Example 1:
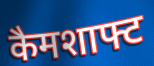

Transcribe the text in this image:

कैमशाफ्ट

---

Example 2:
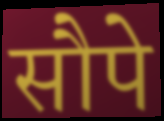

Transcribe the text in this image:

सौपे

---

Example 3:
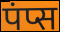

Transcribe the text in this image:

पंप्स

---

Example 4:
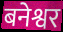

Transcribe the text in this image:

बनेश्वर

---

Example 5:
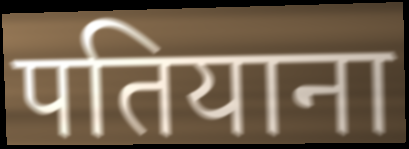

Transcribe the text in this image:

पतियाना